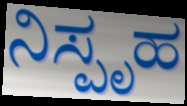
ನಿಸ್ಪೃಹ